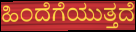
ಹಿಂದೆಗೆಯುತ್ತದೆ